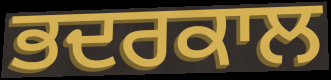
ਭਦਰਕਾਲ